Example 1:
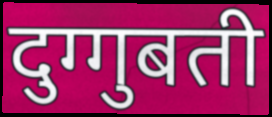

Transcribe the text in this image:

दुग्गुबती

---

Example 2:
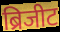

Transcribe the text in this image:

ब्रिजीट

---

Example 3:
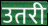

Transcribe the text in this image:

उतरी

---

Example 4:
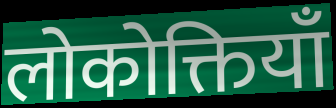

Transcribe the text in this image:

लोकोक्तियाँ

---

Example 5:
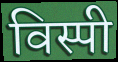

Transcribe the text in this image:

विस्पी